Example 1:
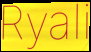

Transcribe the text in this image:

Ryali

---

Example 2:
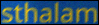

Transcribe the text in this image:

sthalam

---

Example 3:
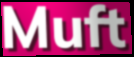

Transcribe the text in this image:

Muft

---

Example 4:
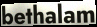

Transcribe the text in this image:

bethalam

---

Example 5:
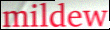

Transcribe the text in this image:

mildew